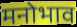
मनोभाव